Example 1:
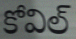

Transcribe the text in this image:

కోవిల్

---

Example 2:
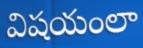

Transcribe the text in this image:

విషయంలా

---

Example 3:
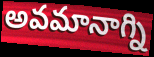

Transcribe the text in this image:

అవమానాగ్ని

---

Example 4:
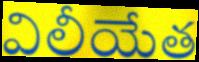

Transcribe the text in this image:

విలీయేత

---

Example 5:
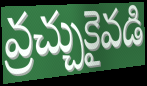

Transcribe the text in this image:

వ్రచ్చుకైవడి